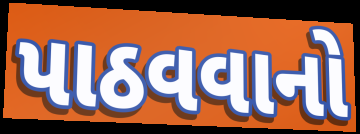
પાઠવવાનો